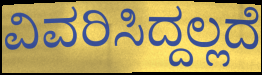
ವಿವರಿಸಿದ್ದಲ್ಲದೆ